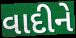
વાદીને